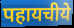
पहायचीये